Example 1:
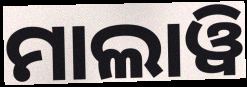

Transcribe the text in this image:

ମାଲାୱି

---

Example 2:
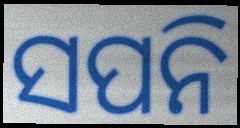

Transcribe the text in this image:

ସପନି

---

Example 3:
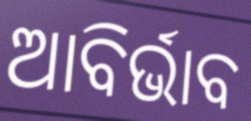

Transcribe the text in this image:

ଆବିର୍ଭାବ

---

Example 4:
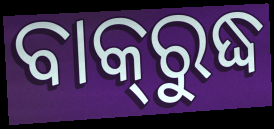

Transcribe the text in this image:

ବାକ୍‌ରୁଦ୍ଧ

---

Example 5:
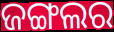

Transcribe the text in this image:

ଜଙ୍ଗଲର